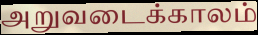
அறுவடைக்காலம்